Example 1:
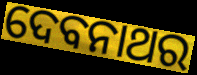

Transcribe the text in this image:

ଦେବନାଥର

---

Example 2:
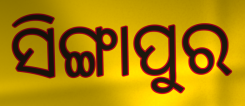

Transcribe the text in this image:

ସିଙ୍ଗାପୁର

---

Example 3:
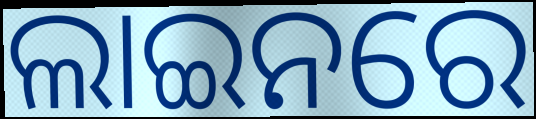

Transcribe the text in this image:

ଲାଇନରେ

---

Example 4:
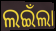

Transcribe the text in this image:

ଲଇଁଲା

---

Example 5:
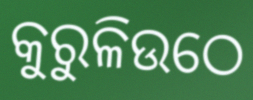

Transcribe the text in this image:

କୁରୁଳିଉଠେ